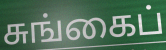
சுங்கைப்